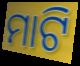
ମାଟି